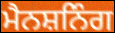
ਮੈਨਸ਼ਨਿੰਗ